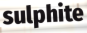
sulphite